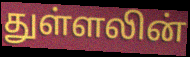
துள்ளலின்